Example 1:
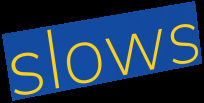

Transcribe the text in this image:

slows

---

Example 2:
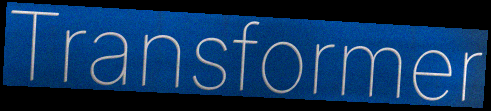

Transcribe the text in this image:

Transformer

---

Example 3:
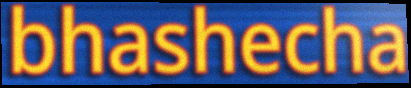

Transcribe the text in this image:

bhashecha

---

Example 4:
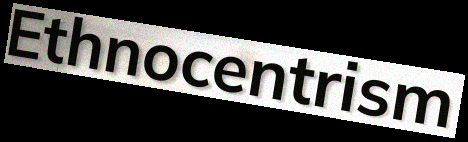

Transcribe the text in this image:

Ethnocentrism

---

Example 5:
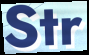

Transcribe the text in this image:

Str